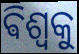
ଵିଶ୍ଵକୁ